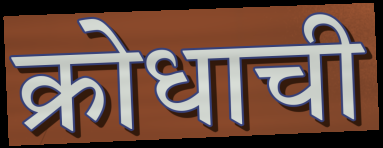
क्रोधाची